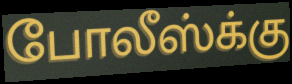
போலீஸ்க்கு